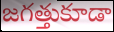
జగత్తుకూడా